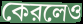
কেরলেও